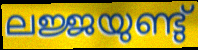
ലജ്ജയുണ്ടു്